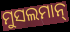
ମୁସଲମାନ୍